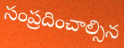
సంప్రదించాల్సిన